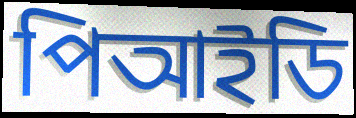
পিআইডি